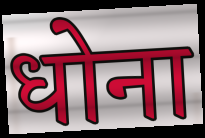
धोना